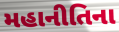
મહાનીતિના